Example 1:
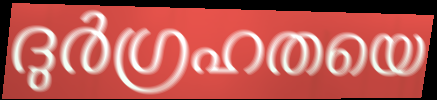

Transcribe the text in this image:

ദുർഗ്രഹതയെ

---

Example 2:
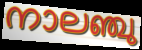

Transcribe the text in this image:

നാലഞ്ചു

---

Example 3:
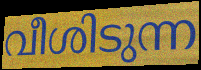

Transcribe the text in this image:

വീശിടുന്ന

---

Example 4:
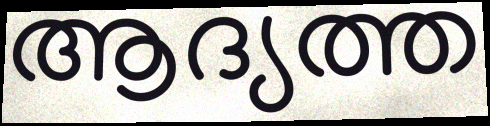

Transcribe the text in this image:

ആദ്യത്ത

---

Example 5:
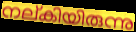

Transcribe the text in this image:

നല്കിയിരുന്നു